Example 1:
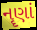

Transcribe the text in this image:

નૄણાં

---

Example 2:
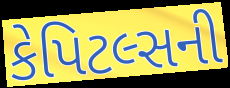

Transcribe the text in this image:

કેપિટલ્સની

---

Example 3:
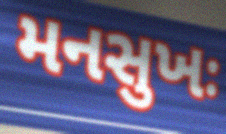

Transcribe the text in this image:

મનસુખઃ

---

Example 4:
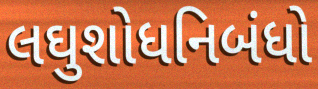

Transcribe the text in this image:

લઘુશોધનિબંધો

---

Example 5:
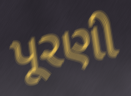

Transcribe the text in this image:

પૂરણી